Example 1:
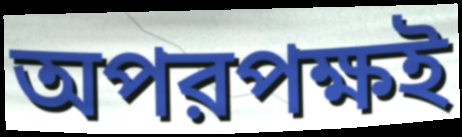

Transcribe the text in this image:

অপরপক্ষই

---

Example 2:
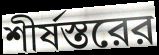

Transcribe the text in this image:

শীর্ষস্তরের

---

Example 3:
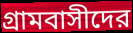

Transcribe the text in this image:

গ্রামবাসীদের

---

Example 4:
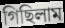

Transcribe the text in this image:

গিছিলাম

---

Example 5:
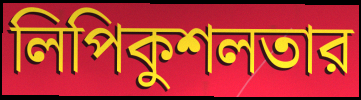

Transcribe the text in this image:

লিপিকুশলতার